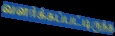
வளர்க்கப்பட்டிருந்த